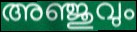
അഞ്ജുവും